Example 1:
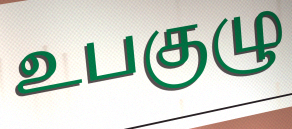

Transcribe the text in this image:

உபகுழு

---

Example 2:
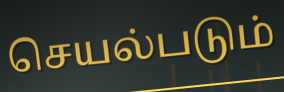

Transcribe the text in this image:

செயல்படும்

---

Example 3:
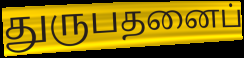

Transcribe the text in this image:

துருபதனைப்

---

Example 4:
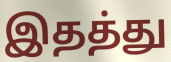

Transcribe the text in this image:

இதத்து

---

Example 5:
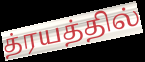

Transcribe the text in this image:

த்ரயத்தில்